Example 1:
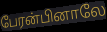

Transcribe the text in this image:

பேரன்பினாலே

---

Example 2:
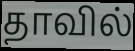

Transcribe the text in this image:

தாவில்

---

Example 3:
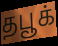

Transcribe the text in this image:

தபூக்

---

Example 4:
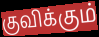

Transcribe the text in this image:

குவிக்கும்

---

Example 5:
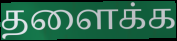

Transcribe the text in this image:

தளைக்க